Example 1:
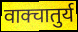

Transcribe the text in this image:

वाक्चातुर्य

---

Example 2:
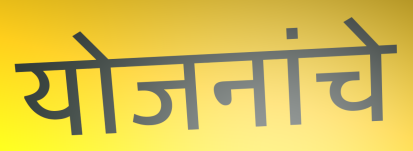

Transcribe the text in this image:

योजनांचे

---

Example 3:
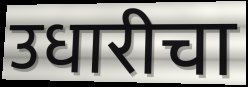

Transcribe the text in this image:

उधारीचा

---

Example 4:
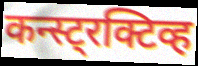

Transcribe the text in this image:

कन्स्ट्रक्टिव्ह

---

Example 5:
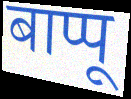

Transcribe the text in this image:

बाप्पू